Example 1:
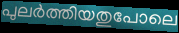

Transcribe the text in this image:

പുലർത്തിയതുപോലെ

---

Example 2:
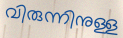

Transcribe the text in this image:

വിരുന്നിനുള്ള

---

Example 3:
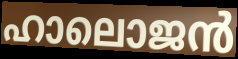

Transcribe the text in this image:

ഹാലൊജൻ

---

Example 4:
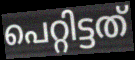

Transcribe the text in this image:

പെറ്റിട്ടത്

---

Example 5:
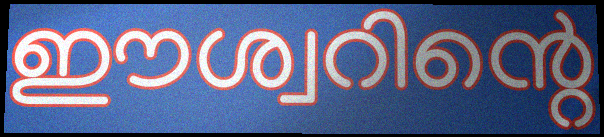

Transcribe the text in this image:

ഈശ്വറിന്റെ